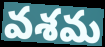
వశమ